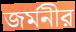
জর্মনীর